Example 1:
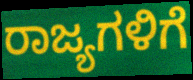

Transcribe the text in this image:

ರಾಜ್ಯಗಳಿಗೆ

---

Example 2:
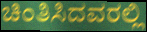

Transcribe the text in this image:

ಚಿಂತಿಸಿದವರಲ್ಲಿ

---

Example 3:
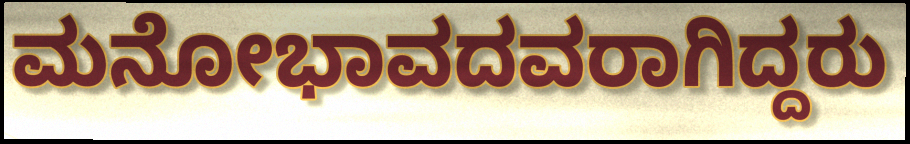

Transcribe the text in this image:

ಮನೋಭಾವದವರಾಗಿದ್ದರು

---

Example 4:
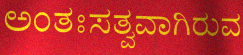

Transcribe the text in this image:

ಅಂತಃಸತ್ವವಾಗಿರುವ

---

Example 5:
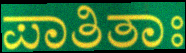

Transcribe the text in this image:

ಪಾತಿತಾಃ